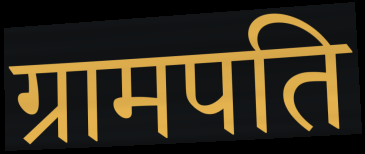
ग्रामपति